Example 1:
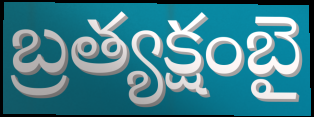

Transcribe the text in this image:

బ్రత్యక్షంబై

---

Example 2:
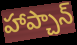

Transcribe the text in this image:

హాప్చాన్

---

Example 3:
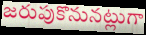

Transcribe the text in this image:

జరుపుకొనునట్లుగా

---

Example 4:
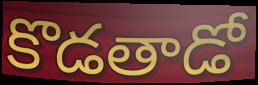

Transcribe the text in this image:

కొడతాడో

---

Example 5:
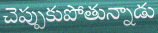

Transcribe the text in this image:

చెప్పుకుపోతున్నాడు